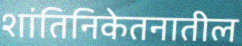
शांतिनिकेतनातील